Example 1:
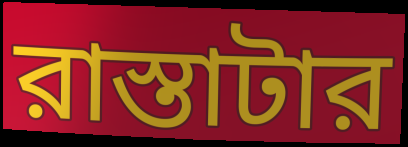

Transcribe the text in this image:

রাস্তাটার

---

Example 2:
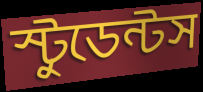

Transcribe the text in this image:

স্টুডেন্টস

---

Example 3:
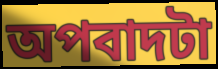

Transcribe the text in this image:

অপবাদটা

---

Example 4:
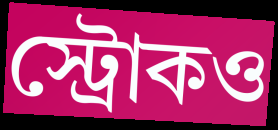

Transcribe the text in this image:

স্ট্রোকও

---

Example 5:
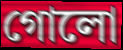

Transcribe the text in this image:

গোলো